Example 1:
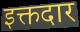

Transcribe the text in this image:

इक्तदार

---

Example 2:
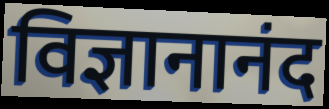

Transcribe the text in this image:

विज्ञानानंद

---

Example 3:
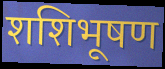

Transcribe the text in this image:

शशिभूषण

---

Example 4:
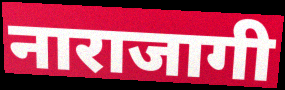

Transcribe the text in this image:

नाराजागी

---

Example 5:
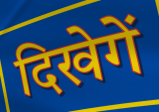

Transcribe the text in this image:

दिखेगें